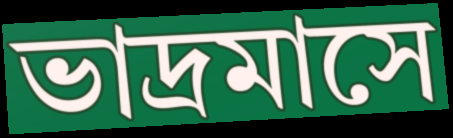
ভাদ্রমাসে